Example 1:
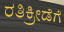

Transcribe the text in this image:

ರತಿಕ್ರೀಡೆಗೆ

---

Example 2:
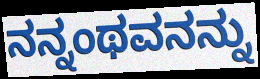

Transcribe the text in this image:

ನನ್ನಂಥವನನ್ನು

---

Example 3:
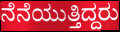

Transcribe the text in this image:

ನೆನೆಯುತ್ತಿದ್ದರು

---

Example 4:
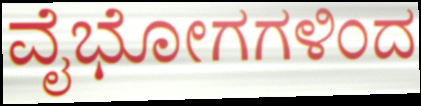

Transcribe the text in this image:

ವೈಭೋಗಗಳಿಂದ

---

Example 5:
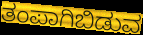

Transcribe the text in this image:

ತಂಪಾಗಿಬಿಡುವ